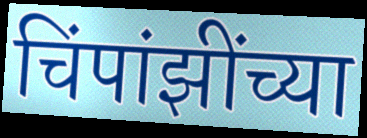
चिंपांझींच्या